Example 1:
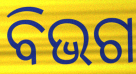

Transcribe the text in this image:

ବିଭଗ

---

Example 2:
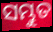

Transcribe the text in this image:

ସମ୍ଭୁତ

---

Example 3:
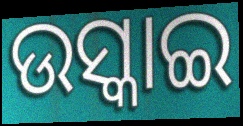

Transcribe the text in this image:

ଉସ୍କାଇ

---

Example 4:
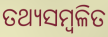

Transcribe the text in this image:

ତଥ୍ୟସମ୍ୱଳିତ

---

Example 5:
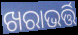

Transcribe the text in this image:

ଖରାଭର୍ତ୍ତି